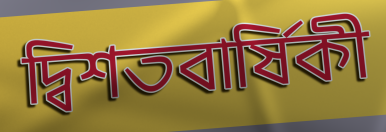
দ্বিশতবার্ষিকী